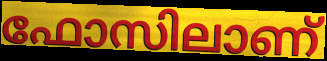
ഫോസിലാണ്